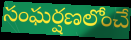
సంఘర్షణలోంచే